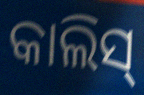
କାଲିସ୍